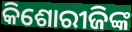
କିଶୋରୀଜିଙ୍କ